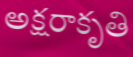
అక్షరాకృతి